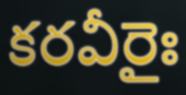
కరవీరైః